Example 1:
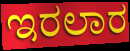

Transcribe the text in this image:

ಇರಲಾರ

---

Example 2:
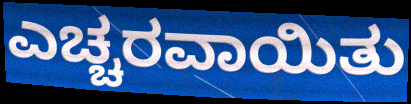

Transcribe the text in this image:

ಎಚ್ಚರವಾಯಿತು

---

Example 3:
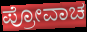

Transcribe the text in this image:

ಪ್ರೋವಾಚ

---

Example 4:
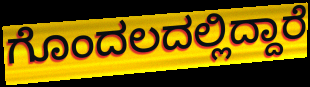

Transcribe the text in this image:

ಗೊಂದಲದಲ್ಲಿದ್ದಾರೆ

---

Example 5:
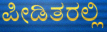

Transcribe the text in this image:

ಪೀಡಿತರಲ್ಲಿ